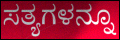
ಸತ್ಯಗಳನ್ನೂ